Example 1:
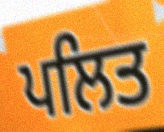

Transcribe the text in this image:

ਪਲਿਤ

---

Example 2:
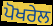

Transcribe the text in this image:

ਪੋਖਰੇਲ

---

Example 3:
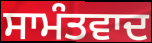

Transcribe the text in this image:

ਸਾਮੰਤਵਾਦ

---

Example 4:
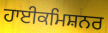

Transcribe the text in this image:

ਹਾਈਕਮਿਸ਼ਨਰ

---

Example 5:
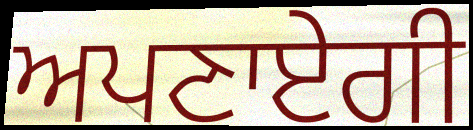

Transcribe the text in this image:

ਅਪਣਾਏਗੀ